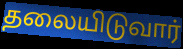
தலையிடுவார்